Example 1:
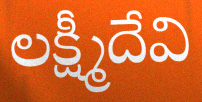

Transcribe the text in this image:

లక్ష్మీదేవి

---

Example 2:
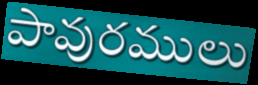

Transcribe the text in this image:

పావురములు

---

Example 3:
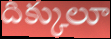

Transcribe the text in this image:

దిక్కులూ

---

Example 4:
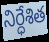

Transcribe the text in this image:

నిర్ధేశిత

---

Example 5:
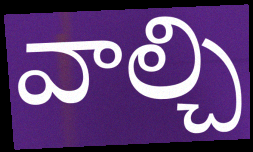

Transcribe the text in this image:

వాల్చి